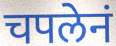
चपलेनं